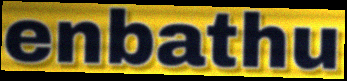
enbathu